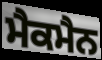
ਮੈਕਮੈਨ